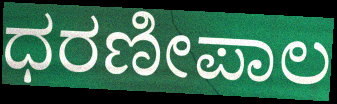
ಧರಣೀಪಾಲ